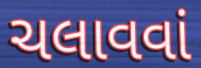
ચલાવવાં